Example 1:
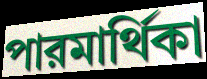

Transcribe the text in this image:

পারমার্থিকা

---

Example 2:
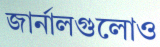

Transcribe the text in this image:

জার্নালগুলোও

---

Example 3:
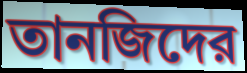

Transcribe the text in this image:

তানজিদের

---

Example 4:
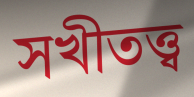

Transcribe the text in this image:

সখীতত্ত্ব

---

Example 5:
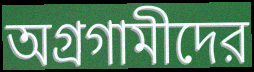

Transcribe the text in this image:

অগ্রগামীদের